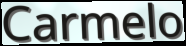
Carmelo